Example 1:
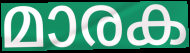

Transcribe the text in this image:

മാരക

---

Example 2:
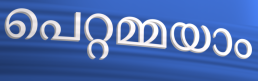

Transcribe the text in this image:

പെറ്റമ്മയാം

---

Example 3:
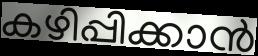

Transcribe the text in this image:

കഴിപ്പിക്കാൻ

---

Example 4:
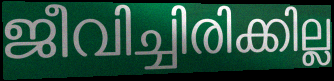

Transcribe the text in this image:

ജീവിച്ചിരിക്കില്ല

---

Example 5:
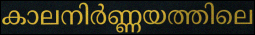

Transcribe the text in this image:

കാലനിർണ്ണയത്തിലെ